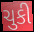
ચુકી